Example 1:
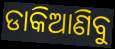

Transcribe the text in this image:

ଡାକିଆଣିବୁ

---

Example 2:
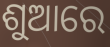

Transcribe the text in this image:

ଶୁଆରେ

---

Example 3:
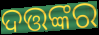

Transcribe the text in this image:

ଦତ୍ତଙ୍କର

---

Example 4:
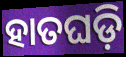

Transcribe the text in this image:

ହାତଘଡ଼ି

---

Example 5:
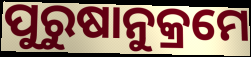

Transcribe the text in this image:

ପୁରୁଷାନୁକ୍ରମେ